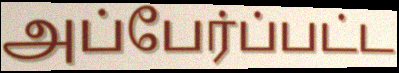
அப்பேர்ப்பட்ட